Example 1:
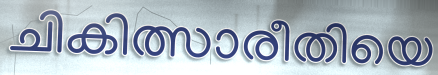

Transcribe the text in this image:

ചികിത്സാരീതിയെ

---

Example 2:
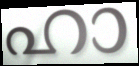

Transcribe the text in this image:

ഹാ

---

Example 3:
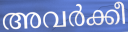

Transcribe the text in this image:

അവർക്കീ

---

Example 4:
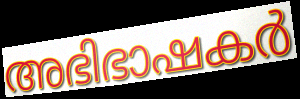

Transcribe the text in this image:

അഭിഭാഷകർ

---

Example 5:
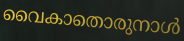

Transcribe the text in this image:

വൈകാതൊരുനാൾ